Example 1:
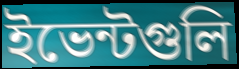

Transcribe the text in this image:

ইভেন্টগুলি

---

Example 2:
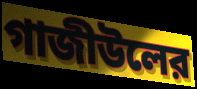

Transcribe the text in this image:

গাজীউলের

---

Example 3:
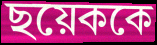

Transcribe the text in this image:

ছয়েককে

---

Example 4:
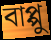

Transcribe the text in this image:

বাপ্পু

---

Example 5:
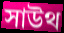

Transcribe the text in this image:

সাউথ